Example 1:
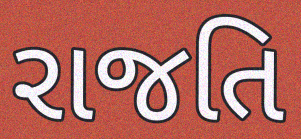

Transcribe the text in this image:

રાજતિ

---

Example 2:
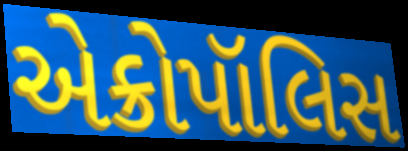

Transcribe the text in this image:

એક્રોપૉલિસ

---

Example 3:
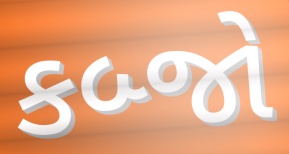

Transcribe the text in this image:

કબ્જો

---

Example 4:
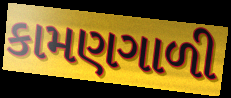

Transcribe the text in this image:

કામણગાળી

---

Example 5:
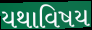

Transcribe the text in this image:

યથાવિષય